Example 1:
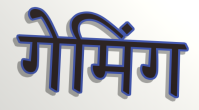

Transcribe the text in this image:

गेमिंग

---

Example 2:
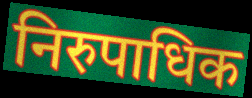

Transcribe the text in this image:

निरुपाधिक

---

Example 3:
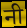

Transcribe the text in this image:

नी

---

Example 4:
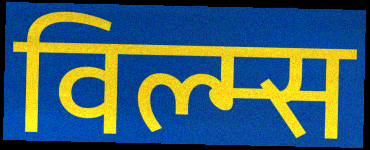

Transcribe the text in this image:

विल्म्स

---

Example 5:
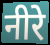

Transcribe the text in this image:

नीरे